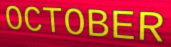
OCTOBER